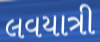
લવયાત્રી